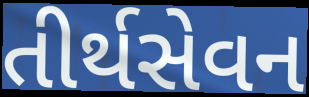
તીર્થસેવન